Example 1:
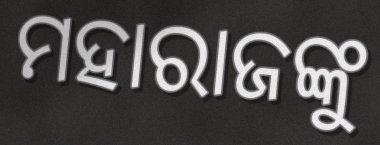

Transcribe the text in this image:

ମହାରାଜଙ୍କୁ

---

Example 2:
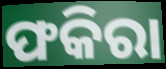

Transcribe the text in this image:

ଫକିରା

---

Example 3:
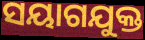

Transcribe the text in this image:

ସୟାଗଯୁକ୍ତ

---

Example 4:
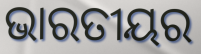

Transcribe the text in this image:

ଭାରତୀୟର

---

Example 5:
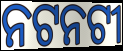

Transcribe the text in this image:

ନଟନଟୀ